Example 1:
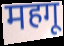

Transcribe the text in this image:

महगू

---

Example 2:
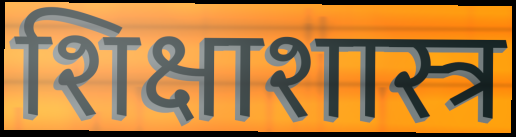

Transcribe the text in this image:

शिक्षाशास्त्र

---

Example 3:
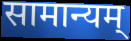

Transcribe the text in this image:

सामान्यम्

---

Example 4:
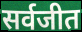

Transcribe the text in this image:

सर्वजीत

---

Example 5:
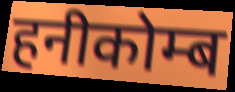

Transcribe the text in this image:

हनीकोम्ब